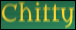
Chitty